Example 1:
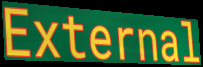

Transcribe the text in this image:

External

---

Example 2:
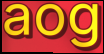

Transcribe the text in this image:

aog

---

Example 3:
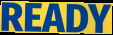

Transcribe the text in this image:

READY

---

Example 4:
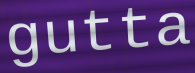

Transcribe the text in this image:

gutta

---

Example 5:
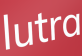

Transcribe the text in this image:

lutra